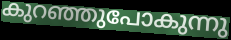
കുറഞ്ഞുപോകുന്നു